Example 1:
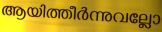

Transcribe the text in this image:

ആയിത്തീർന്നുവല്ലോ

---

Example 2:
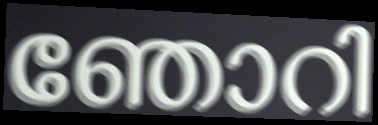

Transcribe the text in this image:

ഞോറി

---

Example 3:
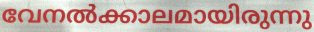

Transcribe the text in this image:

വേനൽക്കാലമായിരുന്നു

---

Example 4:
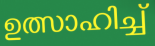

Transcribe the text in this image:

ഉത്സാഹിച്ച്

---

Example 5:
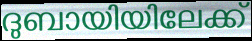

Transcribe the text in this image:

ദുബായിയിലേക്ക്